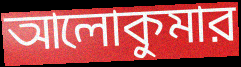
আলোকুমার